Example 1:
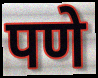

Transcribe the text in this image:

पणे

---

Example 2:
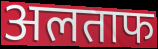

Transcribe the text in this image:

अलताफ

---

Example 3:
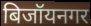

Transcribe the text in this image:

बिजॉयनगर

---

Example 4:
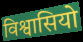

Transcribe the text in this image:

विश्वासियो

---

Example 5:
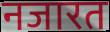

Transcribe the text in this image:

नजारत